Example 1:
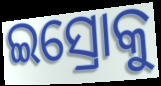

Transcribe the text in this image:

ଇସ୍ରୋକୁ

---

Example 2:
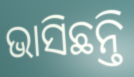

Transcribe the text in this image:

ଭାସିଛନ୍ତି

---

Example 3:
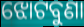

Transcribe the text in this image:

ଝୋଟବୁଣା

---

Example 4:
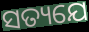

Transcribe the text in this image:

ସତ୍ୟଯେ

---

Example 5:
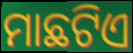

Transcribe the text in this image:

ମାଛଟିଏ